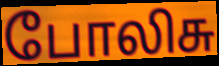
போலிசு